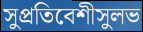
সুপ্রতিবেশীসুলভ